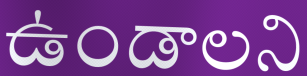
ఉండాలని